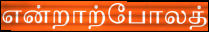
என்றாற்போலத்